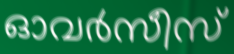
ഓവർസീസ്